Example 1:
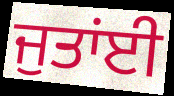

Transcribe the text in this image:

ਜੁਤਾਂਈ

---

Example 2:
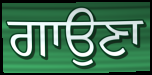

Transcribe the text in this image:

ਗਾਉਣਾ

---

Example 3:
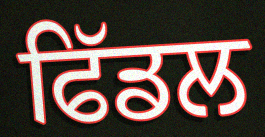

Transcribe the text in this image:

ਫਿੱਡਲ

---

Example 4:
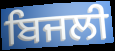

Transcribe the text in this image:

ਬਿਜਲੀ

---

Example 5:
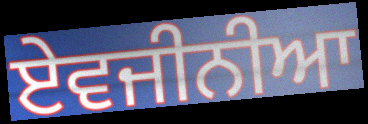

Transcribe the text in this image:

ਏਵਜੀਨੀਆ